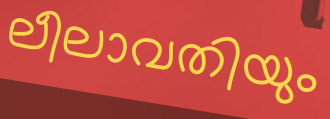
ലീലാവതിയും